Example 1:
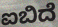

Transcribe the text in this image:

ಐಬಿದೆ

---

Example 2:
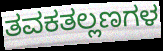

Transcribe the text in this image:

ತವಕತಲ್ಲಣಗಳ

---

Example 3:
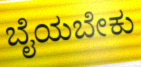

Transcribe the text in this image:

ಬೈಯಬೇಕು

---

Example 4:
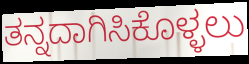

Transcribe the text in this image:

ತನ್ನದಾಗಿಸಿಕೊಳ್ಳಲು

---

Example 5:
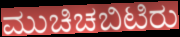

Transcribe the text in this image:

ಮುಚಿಚಬಿಟಿರು